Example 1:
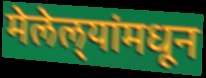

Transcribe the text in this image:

मेलेल्यांमधून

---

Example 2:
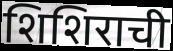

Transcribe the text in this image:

शिशिराची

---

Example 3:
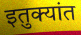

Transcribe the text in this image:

इतुक्यांत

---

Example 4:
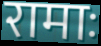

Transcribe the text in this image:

रामाः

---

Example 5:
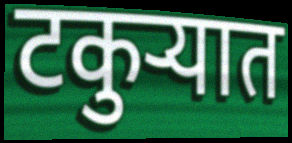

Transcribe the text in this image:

टकुर्‍यात